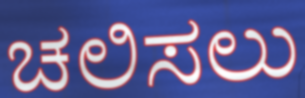
ಚಲಿಸಲು